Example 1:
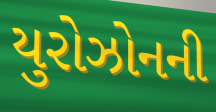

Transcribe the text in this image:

યુરોઝોનની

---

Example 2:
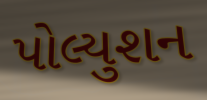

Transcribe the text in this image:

પોલ્યુશન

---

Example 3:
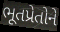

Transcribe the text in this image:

ભૂતપ્રેતોને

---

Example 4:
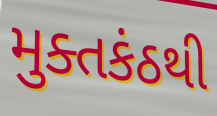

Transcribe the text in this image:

મુક્તકંઠથી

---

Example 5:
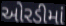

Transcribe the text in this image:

ઓરડીમાં